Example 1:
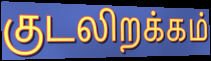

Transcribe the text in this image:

குடலிறக்கம்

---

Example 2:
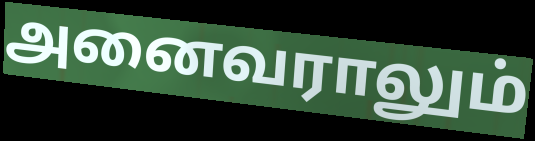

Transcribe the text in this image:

அனைவராலும்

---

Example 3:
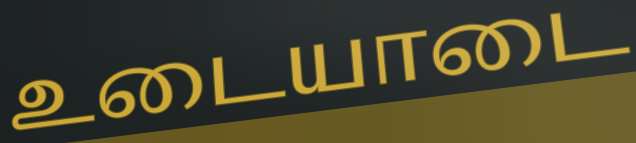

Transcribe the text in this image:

உடையாடை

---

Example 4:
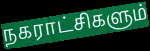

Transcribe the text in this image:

நகராட்சிகளும்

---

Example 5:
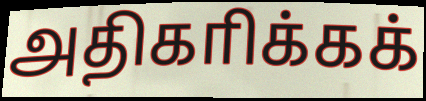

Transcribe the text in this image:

அதிகரிக்கக்